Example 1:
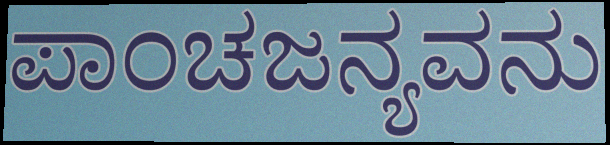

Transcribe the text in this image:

ಪಾಂಚಜನ್ಯವನು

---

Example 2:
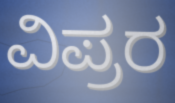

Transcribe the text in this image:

ವಿಪ್ರರ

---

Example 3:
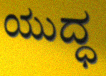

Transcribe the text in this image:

ಯುದ್ಧ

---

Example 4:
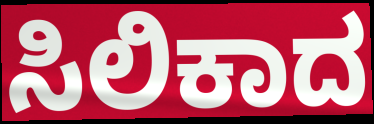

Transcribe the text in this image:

ಸಿಲಿಕಾದ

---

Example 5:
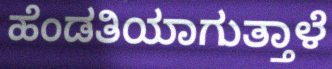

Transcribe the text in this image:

ಹೆಂಡತಿಯಾಗುತ್ತಾಳೆ